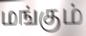
மங்கும்